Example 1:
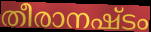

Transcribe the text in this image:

തീരാനഷ്ടം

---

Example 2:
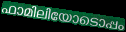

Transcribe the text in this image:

ഫാമിലിയോടൊപ്പം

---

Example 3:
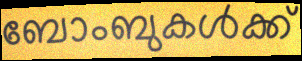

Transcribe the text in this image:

ബോംബുകൾക്ക്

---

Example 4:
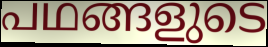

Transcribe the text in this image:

പഥങ്ങളുടെ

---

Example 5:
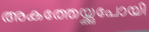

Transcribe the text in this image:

അകത്തേയ്ക്കുപോയി